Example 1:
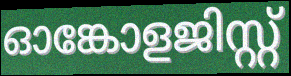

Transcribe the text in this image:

ഓങ്കോളജിസ്റ്റ്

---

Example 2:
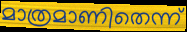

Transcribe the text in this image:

മാത്രമാണിതെന്ന്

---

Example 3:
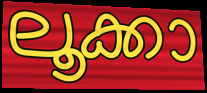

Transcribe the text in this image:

ലൂക്കാ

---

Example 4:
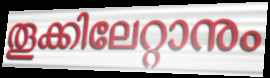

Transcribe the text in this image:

തൂക്കിലേറ്റാനും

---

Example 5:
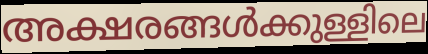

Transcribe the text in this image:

അക്ഷരങ്ങൾക്കുള്ളിലെ